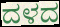
ದಳದ